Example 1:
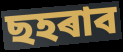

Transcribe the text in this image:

ছহৰাব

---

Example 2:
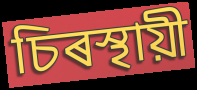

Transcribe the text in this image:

চিৰস্থায়ী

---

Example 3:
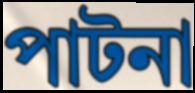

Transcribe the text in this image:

পাটনা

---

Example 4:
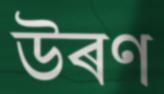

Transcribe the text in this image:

উৰণ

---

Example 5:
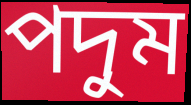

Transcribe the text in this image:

পদুম